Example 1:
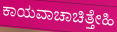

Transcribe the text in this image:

ಕಾಯವಾಚಾಚಿತ್ತೇಹಿ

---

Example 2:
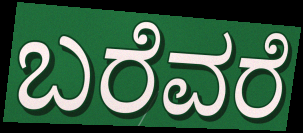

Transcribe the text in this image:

ಬರೆವರೆ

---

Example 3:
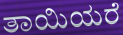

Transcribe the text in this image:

ತಾಯಿಯರೆ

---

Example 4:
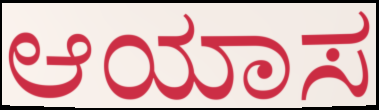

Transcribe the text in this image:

ಆಯಾಸ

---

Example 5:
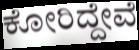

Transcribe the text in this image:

ಕೋರಿದ್ದೇವೆ